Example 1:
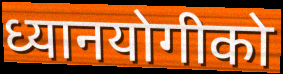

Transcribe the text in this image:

ध्यानयोगीको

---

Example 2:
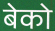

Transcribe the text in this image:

बेको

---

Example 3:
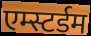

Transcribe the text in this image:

एम्स्टर्डम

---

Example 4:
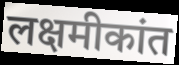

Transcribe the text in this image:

लक्षमीकांत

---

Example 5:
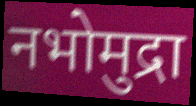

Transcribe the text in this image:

नभोमुद्रा